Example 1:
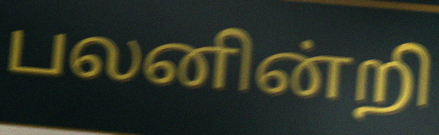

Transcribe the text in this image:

பலனின்றி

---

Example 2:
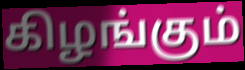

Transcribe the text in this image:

கிழங்கும்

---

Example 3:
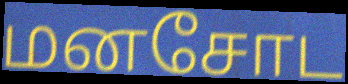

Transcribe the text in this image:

மனசோட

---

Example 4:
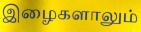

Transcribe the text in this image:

இழைகளாலும்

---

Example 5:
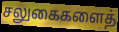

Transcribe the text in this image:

சலுகைகளைத்